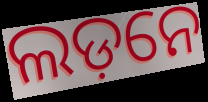
ଲଡ଼ନେ